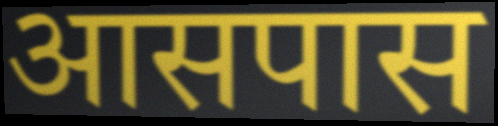
आसपास